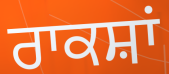
ਰਾਕਸ਼ਾਂ